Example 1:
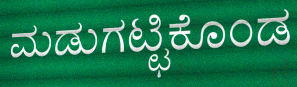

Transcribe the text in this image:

ಮಡುಗಟ್ಟಿಕೊಂಡ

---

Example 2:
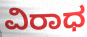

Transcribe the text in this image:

ವಿರಾಧ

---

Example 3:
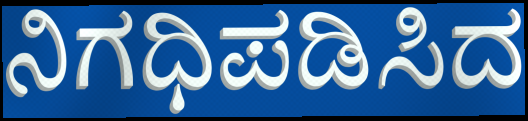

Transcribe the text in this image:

ನಿಗಧಿಪಡಿಸಿದ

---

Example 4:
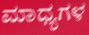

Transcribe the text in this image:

ಮಾಧ್ಯಗಳ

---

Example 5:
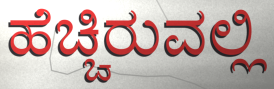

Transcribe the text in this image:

ಹೆಚ್ಚಿರುವಲ್ಲಿ